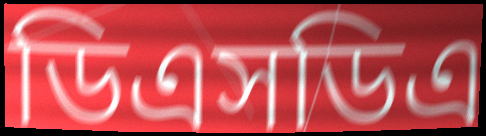
ডিএসডিএ